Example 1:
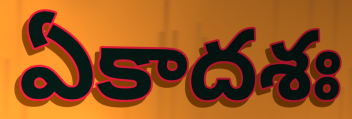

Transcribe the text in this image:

ఏకాదశః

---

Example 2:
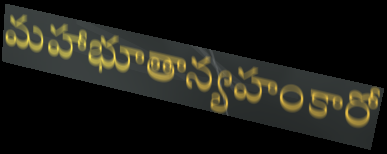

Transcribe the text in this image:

మహాభూతాన్యహంకారో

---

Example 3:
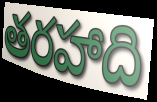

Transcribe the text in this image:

తరహాది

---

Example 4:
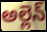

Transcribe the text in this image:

అల్లెన్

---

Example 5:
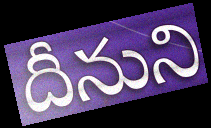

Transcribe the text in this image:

దీనుని